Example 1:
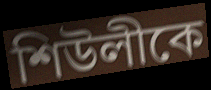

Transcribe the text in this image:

শিউলীকে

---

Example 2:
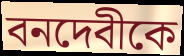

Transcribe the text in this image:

বনদেবীকে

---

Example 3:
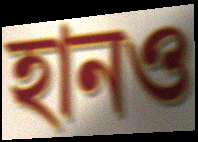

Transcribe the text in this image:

হানও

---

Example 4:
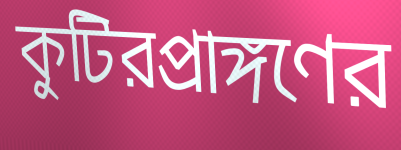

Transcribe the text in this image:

কুটিরপ্রাঙ্গণের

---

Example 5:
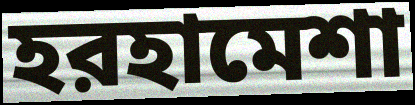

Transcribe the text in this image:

হরহামেশা